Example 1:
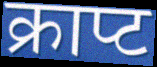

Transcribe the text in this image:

क्राप्ट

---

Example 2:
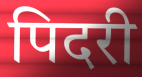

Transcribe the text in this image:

पिदरी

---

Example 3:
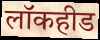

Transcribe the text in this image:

लॉकहीड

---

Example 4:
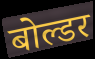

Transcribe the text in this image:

बोल्डर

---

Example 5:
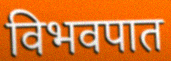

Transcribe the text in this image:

विभवपात